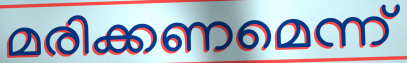
മരിക്കണമെന്ന്